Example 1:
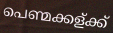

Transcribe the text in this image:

പെണ്മക്കള്ക്ക്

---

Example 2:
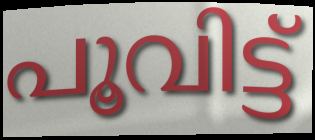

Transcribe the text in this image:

പൂവിട്ട്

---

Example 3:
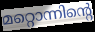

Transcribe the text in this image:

മറ്റൊന്നിന്റെ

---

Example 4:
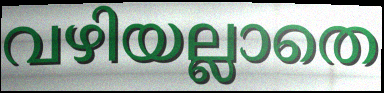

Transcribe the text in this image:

വഴിയല്ലാതെ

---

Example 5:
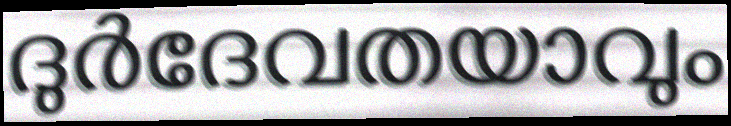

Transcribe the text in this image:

ദുർദേവതയാവും